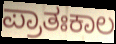
ಪ್ರಾತಃಕಾಲ